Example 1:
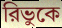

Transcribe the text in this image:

রিভুকে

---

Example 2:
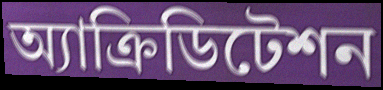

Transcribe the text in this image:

অ্যাক্রিডিটেশন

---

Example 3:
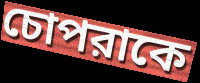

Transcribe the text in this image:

চোপরাকে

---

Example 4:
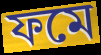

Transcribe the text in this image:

ফমে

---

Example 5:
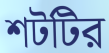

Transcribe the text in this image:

শটটির